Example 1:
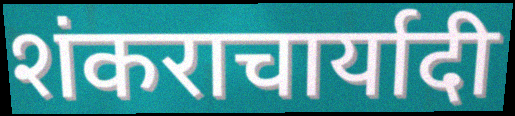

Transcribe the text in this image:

शंकराचार्यादी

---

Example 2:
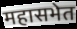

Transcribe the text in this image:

महासभेत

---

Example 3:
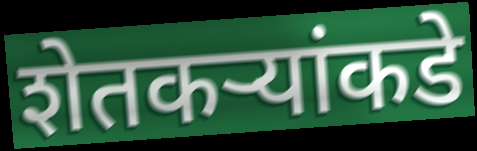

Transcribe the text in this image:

शेतकर्‍यांकडे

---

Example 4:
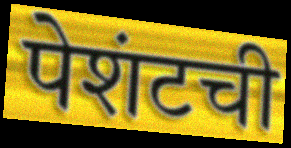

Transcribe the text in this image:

पेशंटची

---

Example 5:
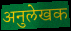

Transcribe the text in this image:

अनुलेखक